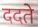
ददते